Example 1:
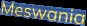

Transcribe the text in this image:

Meswania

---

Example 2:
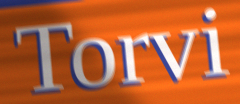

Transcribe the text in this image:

Torvi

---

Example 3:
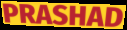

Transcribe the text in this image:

PRASHAD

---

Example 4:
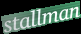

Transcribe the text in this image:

stallman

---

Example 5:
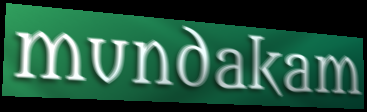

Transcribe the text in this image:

mundakam